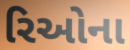
રિઓના